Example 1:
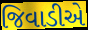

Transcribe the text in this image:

જિવાડીએ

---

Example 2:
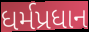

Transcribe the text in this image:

ધર્મપ્રધાન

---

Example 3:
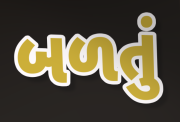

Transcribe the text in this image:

બળતું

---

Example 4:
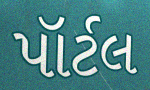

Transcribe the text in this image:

પૉર્ટલ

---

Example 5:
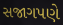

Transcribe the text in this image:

સજાગપણે